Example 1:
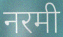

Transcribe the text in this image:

नरमी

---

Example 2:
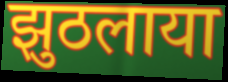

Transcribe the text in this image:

झुठलाया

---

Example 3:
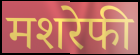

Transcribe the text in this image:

मशरेफी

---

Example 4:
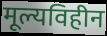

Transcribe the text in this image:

मूल्यविहीन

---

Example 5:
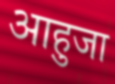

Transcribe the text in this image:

आहुजा